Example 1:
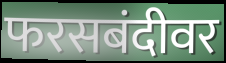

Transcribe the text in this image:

फरसबंदीवर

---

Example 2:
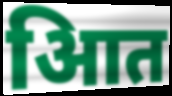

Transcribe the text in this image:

आित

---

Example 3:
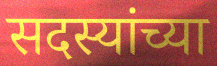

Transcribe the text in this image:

सदस्यांच्या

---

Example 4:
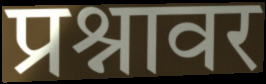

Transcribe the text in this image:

प्रश्नावर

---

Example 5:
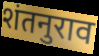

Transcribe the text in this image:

शंतनुराव